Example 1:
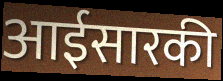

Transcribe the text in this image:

आईसारकी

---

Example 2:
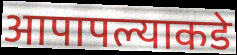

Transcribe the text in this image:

आपापल्याकडे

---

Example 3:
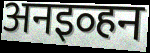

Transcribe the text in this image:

अनइव्हन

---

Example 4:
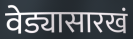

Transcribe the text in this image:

वेड्यासारखं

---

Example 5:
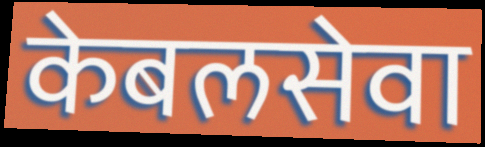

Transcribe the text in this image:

केबलसेवा